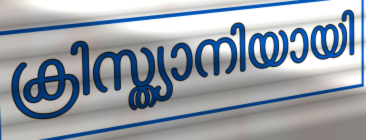
ക്രിസ്ത്യാനിയായി